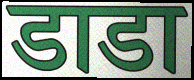
डाडा